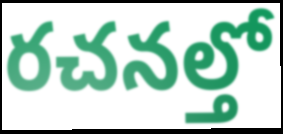
రచనల్తో